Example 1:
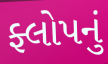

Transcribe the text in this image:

ફ્લોપનું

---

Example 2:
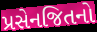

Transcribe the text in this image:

પ્રસેનજિતનો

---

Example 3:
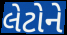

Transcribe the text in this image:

લેટોને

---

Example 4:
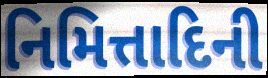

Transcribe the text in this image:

નિમિત્તાદિની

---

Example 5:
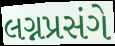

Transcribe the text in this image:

લગ્નપ્રસંગે